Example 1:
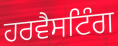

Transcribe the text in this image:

ਹਰਵੈਸਟਿੰਗ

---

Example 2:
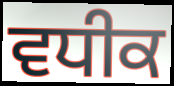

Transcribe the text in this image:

ਵਧੀਕ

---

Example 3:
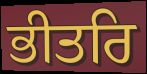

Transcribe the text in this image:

ਭੀਤਰਿ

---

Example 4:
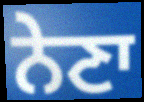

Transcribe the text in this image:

ਨੇਣਾ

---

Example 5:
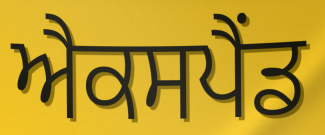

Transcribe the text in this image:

ਐਕਸਪੈਂਡ